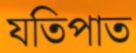
যতিপাত